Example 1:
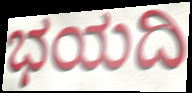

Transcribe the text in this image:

ಭಯದಿ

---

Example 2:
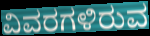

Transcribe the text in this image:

ವಿವರಗಳಿರುವ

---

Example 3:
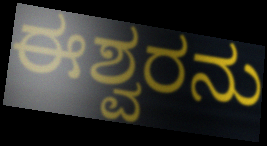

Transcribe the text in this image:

ಈಶ್ವರನು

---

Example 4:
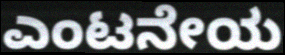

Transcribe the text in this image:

ಎಂಟನೇಯ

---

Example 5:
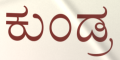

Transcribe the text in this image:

ಕುಂಡ್ರ